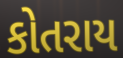
કોતરાય